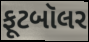
ફૂટબૉલર